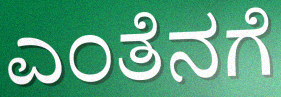
ಎಂತೆನಗೆ